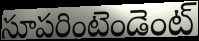
సూపరింటెండెంట్